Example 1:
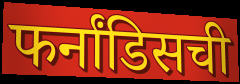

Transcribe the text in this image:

फर्नांडिसची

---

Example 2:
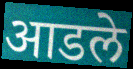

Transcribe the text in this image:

आडले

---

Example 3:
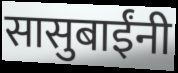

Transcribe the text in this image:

सासुबाईंनी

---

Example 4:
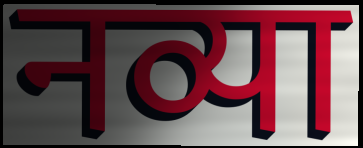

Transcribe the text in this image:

नव्या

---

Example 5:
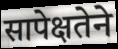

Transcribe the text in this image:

सापेक्षतेने